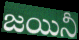
జయినీ